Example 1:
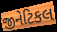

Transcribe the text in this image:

જીનેટિકલ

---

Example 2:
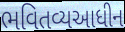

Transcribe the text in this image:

ભવિતવ્યઆધીન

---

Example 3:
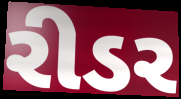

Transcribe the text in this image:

રીડર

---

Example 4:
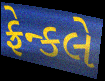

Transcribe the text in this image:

ફ્રેન્કલે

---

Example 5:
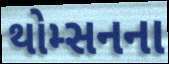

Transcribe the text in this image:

થોમ્સનના